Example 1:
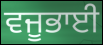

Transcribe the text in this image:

ਵਜੂਭਾਈ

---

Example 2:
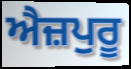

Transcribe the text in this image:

ਐਜ਼ਪੁਰੂ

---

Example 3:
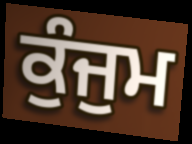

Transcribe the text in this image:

ਕੁੰਜੁਮ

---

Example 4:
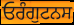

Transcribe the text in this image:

ਓਰੰਗੁਟਨਸ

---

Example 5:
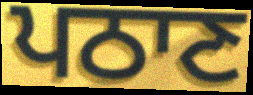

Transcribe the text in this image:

ਪਠਾਣ